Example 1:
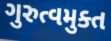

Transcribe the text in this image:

ગુરુત્વમુક્ત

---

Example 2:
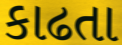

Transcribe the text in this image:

કાઢતા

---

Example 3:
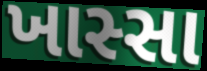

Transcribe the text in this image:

ખાસ્સા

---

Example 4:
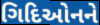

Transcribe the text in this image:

ગિદિઓનને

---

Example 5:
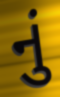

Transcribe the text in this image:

નું